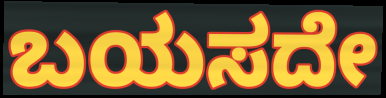
ಬಯಸದೇ